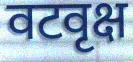
वटवृक्ष